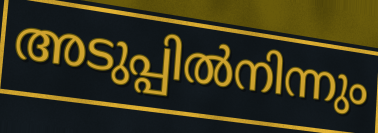
അടുപ്പിൽനിന്നും